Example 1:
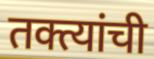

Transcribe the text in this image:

तक्त्यांची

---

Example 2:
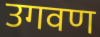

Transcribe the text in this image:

उगवण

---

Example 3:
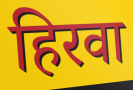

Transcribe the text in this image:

हिरवा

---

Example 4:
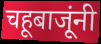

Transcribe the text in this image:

चहूबाजूंनी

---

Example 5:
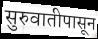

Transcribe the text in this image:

सुरुवातीपासून